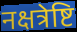
नक्षत्रेष्टि